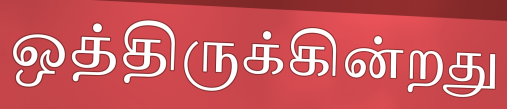
ஒத்திருக்கின்றது